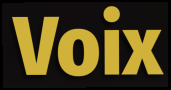
Voix